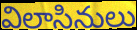
విలాసినులు